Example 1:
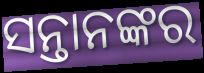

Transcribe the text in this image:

ସନ୍ତାନଙ୍କର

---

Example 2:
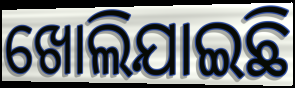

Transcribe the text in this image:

ଖୋଲିଯାଇଛି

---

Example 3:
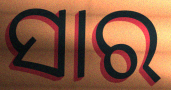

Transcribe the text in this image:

ସାର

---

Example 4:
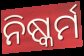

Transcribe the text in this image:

ନିଷ୍କର୍ମ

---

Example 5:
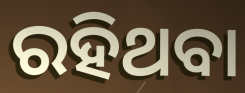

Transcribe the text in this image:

ରହିଥବା